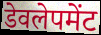
डेवलेपमेंट